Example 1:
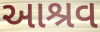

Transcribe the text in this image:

આશ્રવ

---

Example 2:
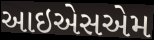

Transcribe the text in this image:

આઇએસએમ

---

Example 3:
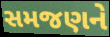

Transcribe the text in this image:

સમજણને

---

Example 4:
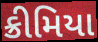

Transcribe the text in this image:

ક્રીમિયા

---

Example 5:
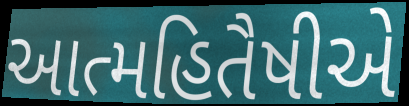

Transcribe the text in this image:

આત્મહિતૈષીએ